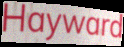
Hayward